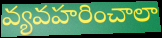
వ్యవహరించాలా